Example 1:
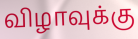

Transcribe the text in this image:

விழாவுக்கு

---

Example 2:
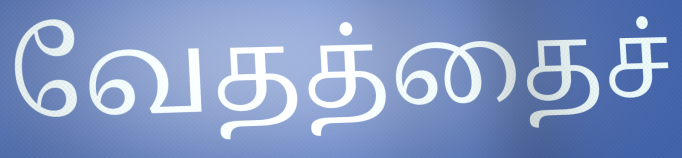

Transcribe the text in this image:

வேதத்தைச்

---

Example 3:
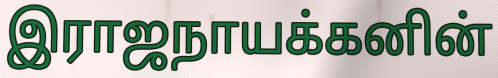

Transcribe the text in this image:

இராஜநாயக்கனின்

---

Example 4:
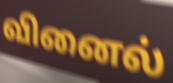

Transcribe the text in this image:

வினைல்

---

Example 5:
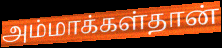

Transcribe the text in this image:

அம்மாக்கள்தான்